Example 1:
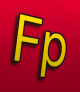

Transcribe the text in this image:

Fp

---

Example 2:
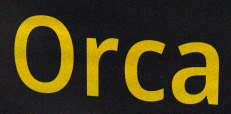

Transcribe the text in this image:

Orca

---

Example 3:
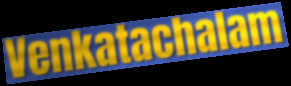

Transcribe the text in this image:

Venkatachalam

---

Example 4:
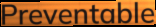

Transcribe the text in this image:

Preventable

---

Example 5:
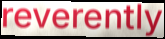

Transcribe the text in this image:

reverently